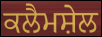
ਕਲੈਮਸ਼ੇਲ